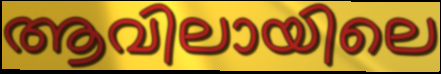
ആവിലായിലെ